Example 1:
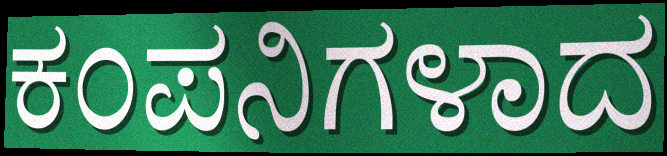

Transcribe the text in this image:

ಕಂಪನಿಗಳಾದ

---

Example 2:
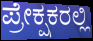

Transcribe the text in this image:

ಪ್ರೇಕ್ಷಕರಲ್ಲಿ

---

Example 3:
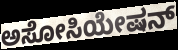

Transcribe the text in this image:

ಅಸೋಸಿಯೇಷನ್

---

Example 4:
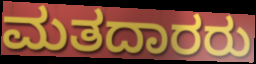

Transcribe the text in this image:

ಮತದಾರರು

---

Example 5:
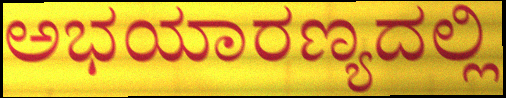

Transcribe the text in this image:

ಅಭಯಾರಣ್ಯದಲ್ಲಿ